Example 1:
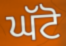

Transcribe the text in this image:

ਘੱਟੋ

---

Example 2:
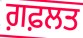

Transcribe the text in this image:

ਗ਼ਫ਼ਲਤ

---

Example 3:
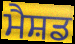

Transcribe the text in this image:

ਮੈਸ਼ਡ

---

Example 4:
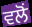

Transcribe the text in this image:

ਵਲੋਂ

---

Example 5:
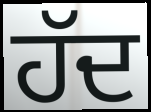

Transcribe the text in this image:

ਹੱਦ